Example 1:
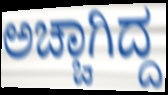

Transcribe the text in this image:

ಅಚ್ಚಾಗಿದ್ದ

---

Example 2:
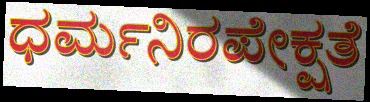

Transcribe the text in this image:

ಧರ್ಮನಿರಪೇಕ್ಷತೆ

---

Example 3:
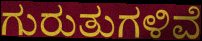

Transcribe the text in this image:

ಗುರುತುಗಳಿವೆ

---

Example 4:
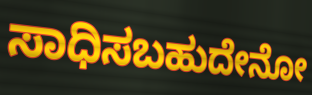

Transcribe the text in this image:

ಸಾಧಿಸಬಹುದೇನೋ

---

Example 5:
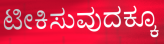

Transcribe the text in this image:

ಟೀಕಿಸುವುದಕ್ಕೂ